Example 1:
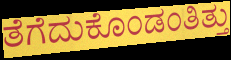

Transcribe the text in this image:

ತೆಗೆದುಕೊಂಡಂತಿತ್ತು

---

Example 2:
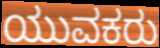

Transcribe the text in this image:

ಯುವಕರು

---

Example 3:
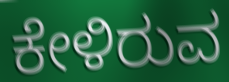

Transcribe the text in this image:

ಕೇಳಿರುವ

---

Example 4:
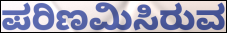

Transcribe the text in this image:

ಪರಿಣಮಿಸಿರುವ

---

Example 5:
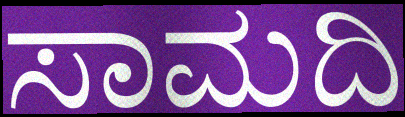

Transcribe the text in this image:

ಸಾಮದಿ